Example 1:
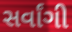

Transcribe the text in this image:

સર્વાંગી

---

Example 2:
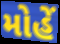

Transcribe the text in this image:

મોહેં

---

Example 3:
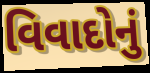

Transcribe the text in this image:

વિવાદોનું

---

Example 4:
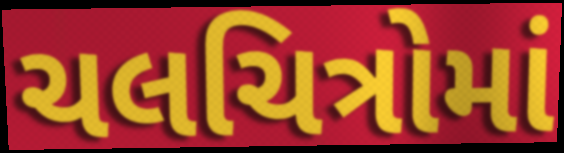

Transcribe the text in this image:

ચલચિત્રોમાં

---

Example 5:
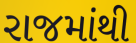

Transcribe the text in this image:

રાજમાંથી